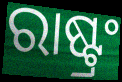
ରାଷ୍ଟ୍ରଂ